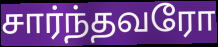
சார்ந்தவரோ